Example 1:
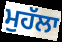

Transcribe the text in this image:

ਮੁਹੱਲਾ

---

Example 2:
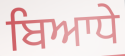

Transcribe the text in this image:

ਬਿਆਧੇ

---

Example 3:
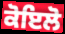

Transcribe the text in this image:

ਕੋਇਲੋ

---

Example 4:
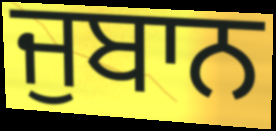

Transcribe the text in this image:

ਜੁਬਾਨ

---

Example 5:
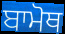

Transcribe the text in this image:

ਬਾਮੋਥ